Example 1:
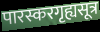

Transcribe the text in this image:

पारस्करगृह्यसूत्र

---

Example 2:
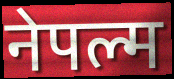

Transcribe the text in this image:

नेपल्म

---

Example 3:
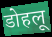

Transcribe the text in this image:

डोहलू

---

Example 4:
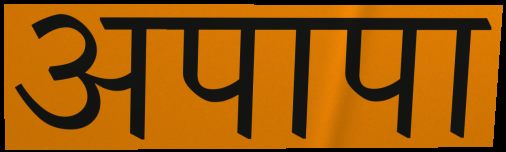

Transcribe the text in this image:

अपापा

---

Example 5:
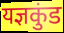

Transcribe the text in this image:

यज्ञकुंड